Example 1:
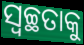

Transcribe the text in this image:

ସ୍ବଚ୍ଛତାକୁ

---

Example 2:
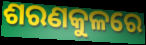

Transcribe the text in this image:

ଶରଣକୁଳରେ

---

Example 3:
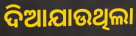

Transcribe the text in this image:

ଦିଆଯାଉଥିଲା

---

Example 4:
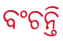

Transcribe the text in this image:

ବଂଚନ୍ତି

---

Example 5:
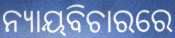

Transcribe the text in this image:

ନ୍ୟାୟବିଚାରରେ